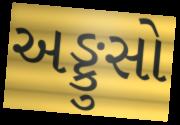
અઙ્કુસો